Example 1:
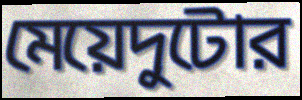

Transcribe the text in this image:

মেয়েদুটোর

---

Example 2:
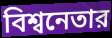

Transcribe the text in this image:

বিশ্বনেতার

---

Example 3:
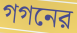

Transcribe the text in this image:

গগনের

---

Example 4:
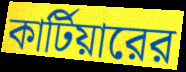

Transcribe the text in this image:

কার্টিয়ারের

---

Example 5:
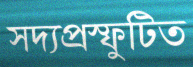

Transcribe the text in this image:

সদ্যপ্রস্ফুটিত